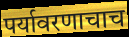
पर्यावरणाचाच